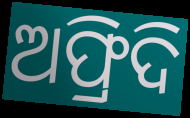
ଅଫ୍ରିଦି